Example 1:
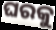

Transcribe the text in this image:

ଘରକୁ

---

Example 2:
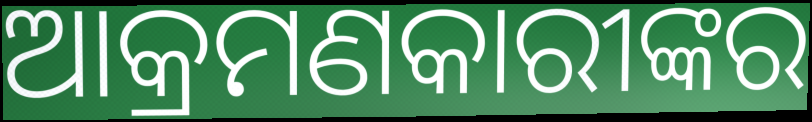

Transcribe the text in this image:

ଆକ୍ରମଣକାରୀଙ୍କର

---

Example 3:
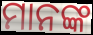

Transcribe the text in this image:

ମାନଙ୍କ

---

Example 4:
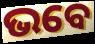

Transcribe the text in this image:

ଭବେ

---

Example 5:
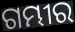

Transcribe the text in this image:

ଗମ୍ଭୀର